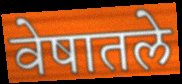
वेषातले